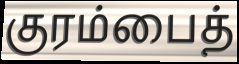
குரம்பைத்